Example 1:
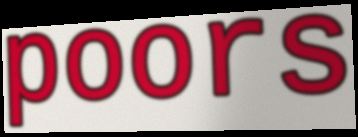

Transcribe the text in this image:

poors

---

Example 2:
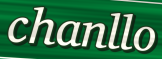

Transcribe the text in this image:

chanllo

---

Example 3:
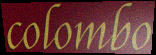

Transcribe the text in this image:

colombo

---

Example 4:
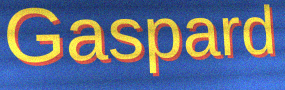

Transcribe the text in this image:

Gaspard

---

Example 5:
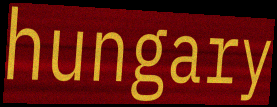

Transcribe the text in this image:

hungary